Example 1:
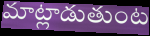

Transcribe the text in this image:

మాట్లాడుతుంట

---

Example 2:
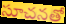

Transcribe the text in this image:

సూచనతో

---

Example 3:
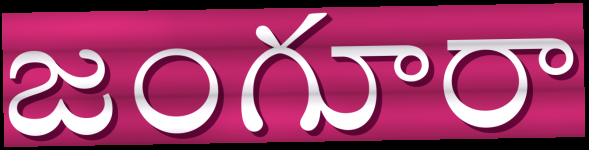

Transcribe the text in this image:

జంగూరా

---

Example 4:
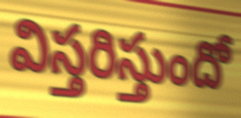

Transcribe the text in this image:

విస్తరిస్తుందో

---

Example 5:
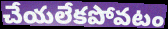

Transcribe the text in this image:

చేయలేకపోవటం